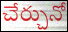
చేర్చునో